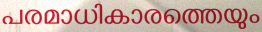
പരമാധികാരത്തെയും